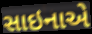
સાઇનાએ